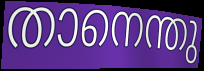
താനെന്തു